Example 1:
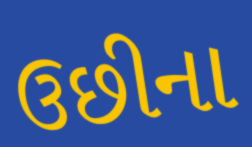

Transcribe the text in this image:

ઉછીના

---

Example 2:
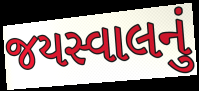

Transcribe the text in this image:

જયસ્વાલનું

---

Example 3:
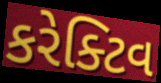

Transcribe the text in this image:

કરેક્ટિવ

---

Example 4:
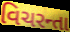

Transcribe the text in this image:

વિચરન્તા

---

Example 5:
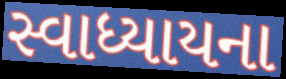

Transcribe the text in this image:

સ્વાધ્યાયના